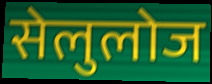
सेलुलोज